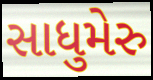
સાધુમેરુ